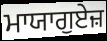
ਮਾਯਾਗੁਏਜ਼